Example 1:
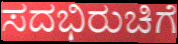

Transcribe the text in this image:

ಸದಭಿರುಚಿಗೆ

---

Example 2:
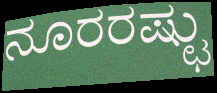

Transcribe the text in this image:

ನೂರರಷ್ಟು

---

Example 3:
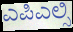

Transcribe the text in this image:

ಎಪಿಎಲ್ಸಿ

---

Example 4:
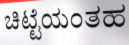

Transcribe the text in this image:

ಚಿಟ್ಟೆಯಂತಹ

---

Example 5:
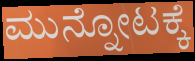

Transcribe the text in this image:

ಮುನ್ನೋಟಕ್ಕೆ